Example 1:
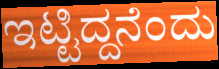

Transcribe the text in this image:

ಇಟ್ಟಿದ್ದನೆಂದು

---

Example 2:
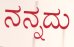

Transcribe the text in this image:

ನನ್ನದು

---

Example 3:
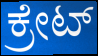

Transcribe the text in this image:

ಕ್ರೇಟ್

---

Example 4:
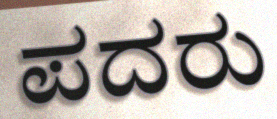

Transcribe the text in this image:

ಪದರು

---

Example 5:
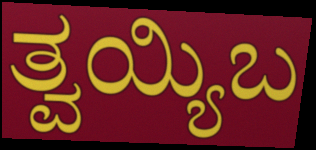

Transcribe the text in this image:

ತ್ವಯ್ಯಿಬ